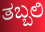
ತಬ್ಬಲಿ